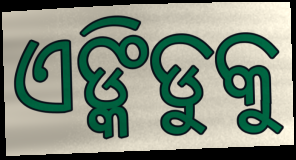
ଏଙ୍କିଡୁକୁ